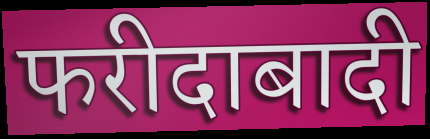
फरीदाबादी